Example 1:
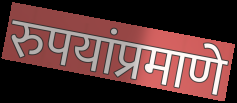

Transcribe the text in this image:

रुपयांप्रमाणे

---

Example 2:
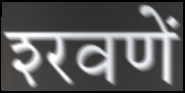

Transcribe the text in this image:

श्रवणें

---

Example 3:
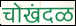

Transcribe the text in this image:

चोखंदळ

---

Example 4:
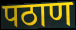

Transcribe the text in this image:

पठाण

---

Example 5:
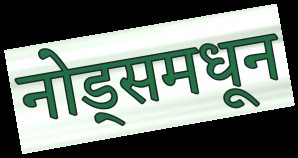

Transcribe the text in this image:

नोड्समधून